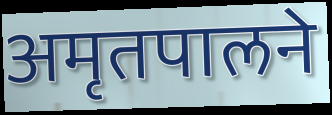
अमृतपालने